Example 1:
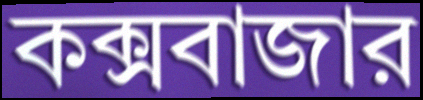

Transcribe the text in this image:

কক্সবাজার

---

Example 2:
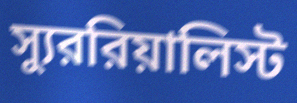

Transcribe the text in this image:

স্যুররিয়ালিস্ট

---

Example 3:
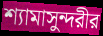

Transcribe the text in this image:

শ্যামাসুন্দরীর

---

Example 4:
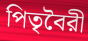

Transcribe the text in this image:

পিতৃবৈরী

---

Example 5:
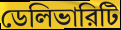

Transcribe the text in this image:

ডেলিভারিটি